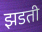
झडती